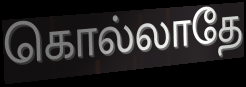
கொல்லாதே